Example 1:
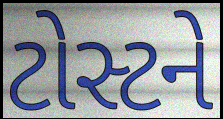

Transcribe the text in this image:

ટોસ્ટને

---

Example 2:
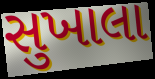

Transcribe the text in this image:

સુખાલા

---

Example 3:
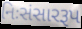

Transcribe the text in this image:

નિઃસંસારરૂપ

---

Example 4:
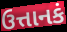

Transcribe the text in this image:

ઉત્તાનકં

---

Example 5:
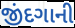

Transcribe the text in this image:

જીંદગાની